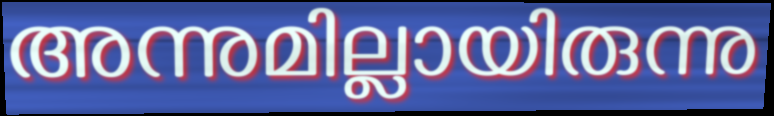
അന്നുമില്ലായിരുന്നു